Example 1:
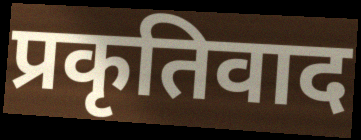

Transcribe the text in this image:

प्रकृतिवाद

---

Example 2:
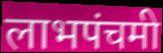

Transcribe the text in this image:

लाभपंचमी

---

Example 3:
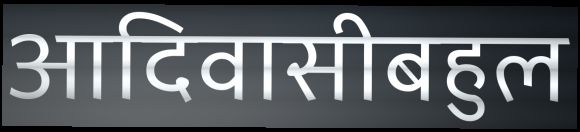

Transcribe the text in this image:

आदिवासीबहुल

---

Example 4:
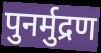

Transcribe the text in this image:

पुनर्मुद्रण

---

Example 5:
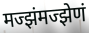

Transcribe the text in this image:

मज्झंमज्झेणं